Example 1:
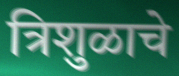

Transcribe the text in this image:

त्रिशुळाचे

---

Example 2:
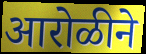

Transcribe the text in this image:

आरोळीने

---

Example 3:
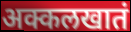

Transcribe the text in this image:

अक्कलखातं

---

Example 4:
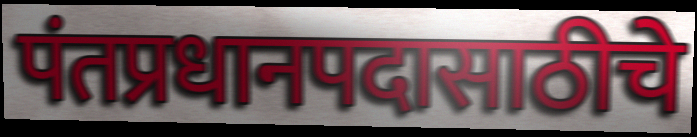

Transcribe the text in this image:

पंतप्रधानपदासाठीचे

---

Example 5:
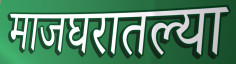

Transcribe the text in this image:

माजघरातल्या